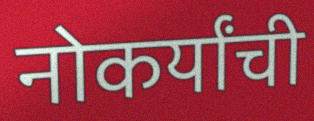
नोकर्यांची